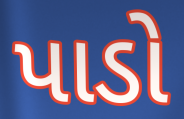
પાડો